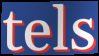
tels